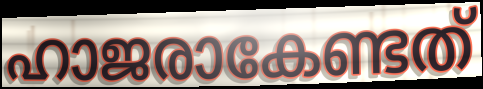
ഹാജരാകേണ്ടത്